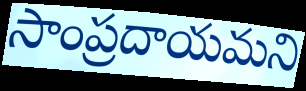
సాంప్రదాయమని